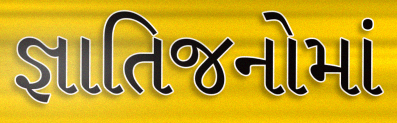
જ્ઞાતિજનોમાં